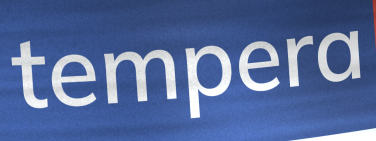
tempera